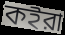
কইরা